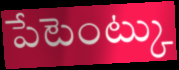
పేటెంట్కు